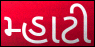
મ્હાટી